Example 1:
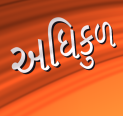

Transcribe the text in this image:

અધિકુળ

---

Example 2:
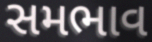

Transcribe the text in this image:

સમભાવ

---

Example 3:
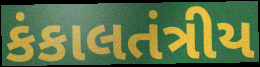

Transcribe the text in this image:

કંકાલતંત્રીય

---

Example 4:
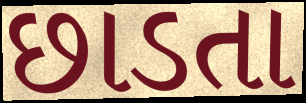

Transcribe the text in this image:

છાડતા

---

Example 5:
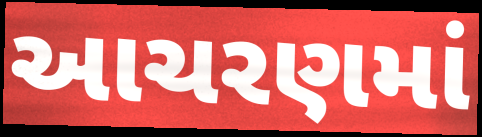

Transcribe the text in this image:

આચરણમાં